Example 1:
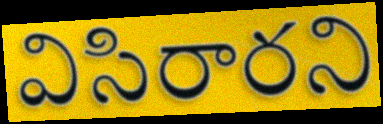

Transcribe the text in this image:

విసిరారని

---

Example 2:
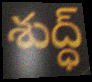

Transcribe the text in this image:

శుద్ధ్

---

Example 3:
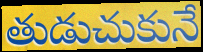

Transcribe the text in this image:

తుడుచుకునే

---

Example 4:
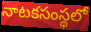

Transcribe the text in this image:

నాటకసంస్థలో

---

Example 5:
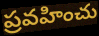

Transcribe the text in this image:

ప్రవహించు